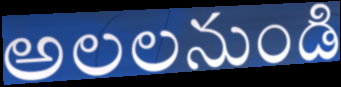
అలలనుండి